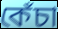
কেঁচা